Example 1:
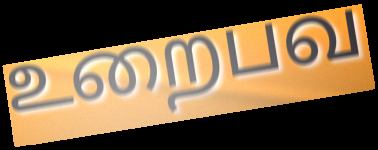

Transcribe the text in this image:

உறைபவ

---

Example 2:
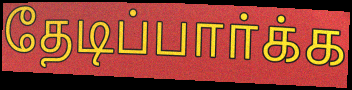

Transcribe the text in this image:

தேடிப்பார்க்க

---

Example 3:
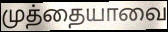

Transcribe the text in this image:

முத்தையாவை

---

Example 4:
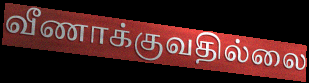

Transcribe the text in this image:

வீணாக்குவதில்லை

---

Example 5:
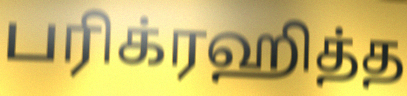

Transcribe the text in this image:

பரிக்ரஹித்த